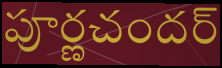
పూర్ణచందర్